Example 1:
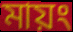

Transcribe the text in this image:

মায়ং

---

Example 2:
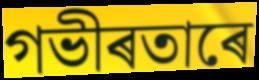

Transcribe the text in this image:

গভীৰতাৰে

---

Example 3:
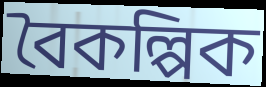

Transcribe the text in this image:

বৈকল্পিক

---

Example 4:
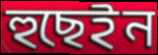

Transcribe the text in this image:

হুছেইন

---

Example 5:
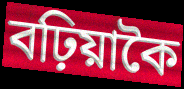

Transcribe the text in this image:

বঢ়িয়াকৈ